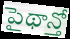
పైథాన్తో